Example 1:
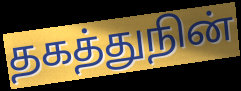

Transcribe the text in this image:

தகத்துநின்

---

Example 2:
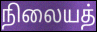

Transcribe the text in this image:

நிலையத்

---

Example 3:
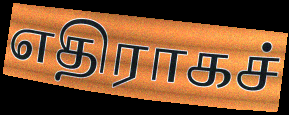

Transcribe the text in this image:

எதிராகச்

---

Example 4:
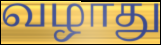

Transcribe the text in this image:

வழாது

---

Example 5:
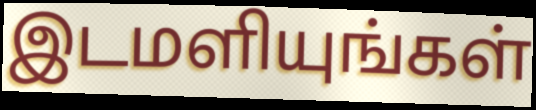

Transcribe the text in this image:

இடமளியுங்கள்